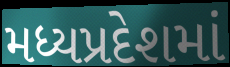
મધ્યપ્રદેશમાં